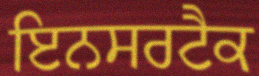
ਇਨਸਰਟੈਕ